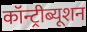
कॉन्ट्रीब्यूशन